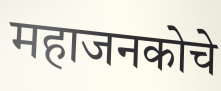
महाजनकोचे